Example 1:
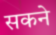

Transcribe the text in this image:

सकने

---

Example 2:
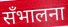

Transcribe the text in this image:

सँभालना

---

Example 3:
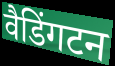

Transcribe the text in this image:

वैडिंगटन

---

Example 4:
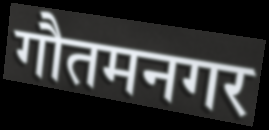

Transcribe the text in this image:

गौतमनगर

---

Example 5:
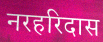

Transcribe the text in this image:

नरहरिदास